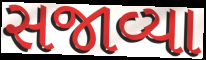
સજાવ્યા